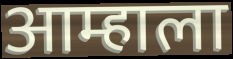
आम्हाला